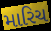
મારિચ